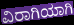
ವಿರಾಗಿಯಾಗಿ